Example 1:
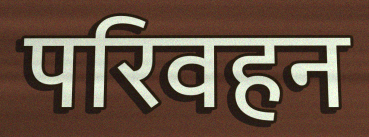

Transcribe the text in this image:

परिवहन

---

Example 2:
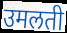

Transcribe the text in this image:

उमलती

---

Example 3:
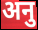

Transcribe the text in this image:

अनु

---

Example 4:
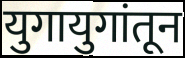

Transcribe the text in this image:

युगायुगांतून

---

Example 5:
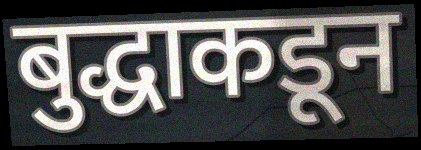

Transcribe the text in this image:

बुद्धाकडून